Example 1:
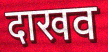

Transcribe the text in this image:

दाखव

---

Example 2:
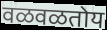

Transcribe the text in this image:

वळवळतोय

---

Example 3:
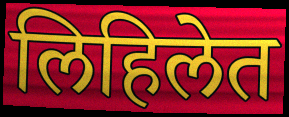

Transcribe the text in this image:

लिहिलेत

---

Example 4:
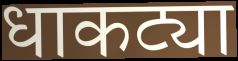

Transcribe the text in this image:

धाकट्या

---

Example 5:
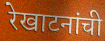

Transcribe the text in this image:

रेखाटनांची